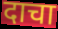
दाचा